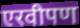
एरवीपण